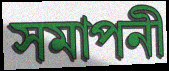
সমাপনী